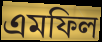
এমফিল